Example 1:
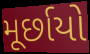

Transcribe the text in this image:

મૂર્છાયો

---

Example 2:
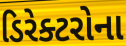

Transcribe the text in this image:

ડિરેક્ટરોના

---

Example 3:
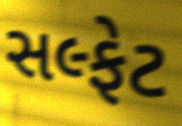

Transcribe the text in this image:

સલ્ફેટ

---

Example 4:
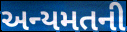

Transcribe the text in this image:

અન્યમતની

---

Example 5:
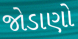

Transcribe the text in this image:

જોડાણો